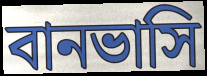
বানভাসি